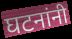
घटनांनी